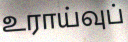
உராய்வுப்